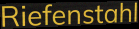
Riefenstahl